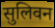
सुलिवन